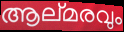
ആല്മരവും